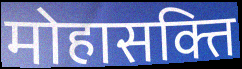
मोहासक्ति